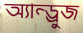
অ্যান্ড্রুজ